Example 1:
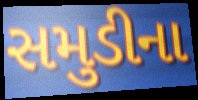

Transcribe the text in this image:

સમુડીના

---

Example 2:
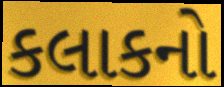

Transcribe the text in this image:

કલાકનો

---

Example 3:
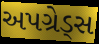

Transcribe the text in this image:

અપગ્રેડ્સ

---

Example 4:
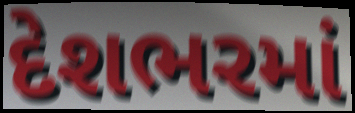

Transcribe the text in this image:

દેશભરમાં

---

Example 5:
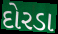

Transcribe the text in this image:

દોરડા